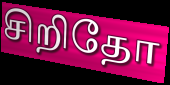
சிறிதோ